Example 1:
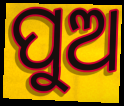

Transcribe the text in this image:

ପୁଅ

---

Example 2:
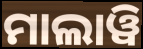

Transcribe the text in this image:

ମାଲାୱି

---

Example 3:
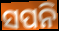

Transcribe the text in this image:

ସପନି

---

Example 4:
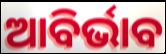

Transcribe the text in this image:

ଆବିର୍ଭାବ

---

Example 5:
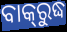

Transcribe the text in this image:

ବାକ୍‌ରୁଦ୍ଧ